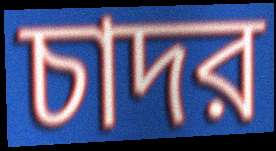
চাদর